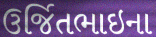
ઉર્જિતભાઇના